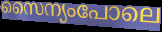
സൈന്യംപോലെ